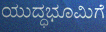
ಯುದ್ಧಭೂಮಿಗೆ